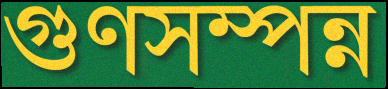
গুণসম্পন্ন